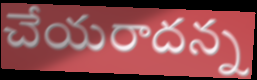
చేయరాదన్న